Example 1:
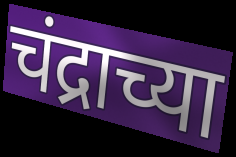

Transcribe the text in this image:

चंद्राच्या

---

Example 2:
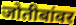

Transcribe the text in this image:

जोतीबांवर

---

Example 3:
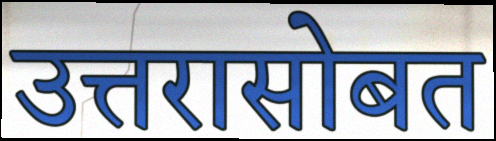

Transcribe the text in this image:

उत्तरासोबत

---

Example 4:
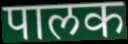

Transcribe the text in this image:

पालक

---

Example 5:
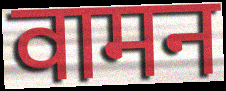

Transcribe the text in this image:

वामन